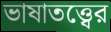
ভাষাতত্ত্বের